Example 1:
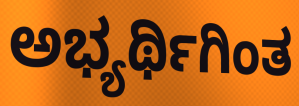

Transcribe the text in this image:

ಅಭ್ಯರ್ಥಿಗಿಂತ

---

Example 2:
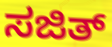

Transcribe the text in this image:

ಸಜಿತ್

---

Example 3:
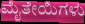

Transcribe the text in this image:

ಮೈತೇಯಿಗಳು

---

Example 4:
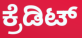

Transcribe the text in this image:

ಕ್ರೆಡಿಟ್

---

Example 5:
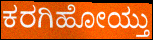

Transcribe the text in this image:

ಕರಗಿಹೋಯ್ತು